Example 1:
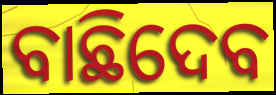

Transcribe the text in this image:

ବାଛିଦେବ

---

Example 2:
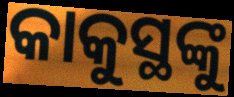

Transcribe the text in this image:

କାକୁସ୍ଥଙ୍କୁ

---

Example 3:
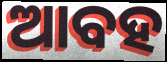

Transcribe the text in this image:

ଆବହ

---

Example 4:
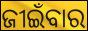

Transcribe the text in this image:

ଜୀଇଁବାର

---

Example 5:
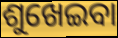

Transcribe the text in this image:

ଶୁଖେଇବା